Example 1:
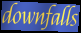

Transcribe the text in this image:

downfalls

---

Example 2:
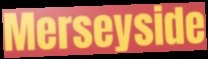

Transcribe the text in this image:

Merseyside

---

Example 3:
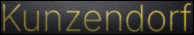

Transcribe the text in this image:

Kunzendorf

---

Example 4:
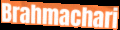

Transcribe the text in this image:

Brahmachari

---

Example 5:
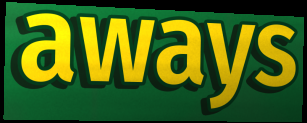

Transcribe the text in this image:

aways